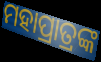
ମହାପ୍ରାତ୍ରଙ୍କ